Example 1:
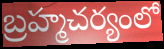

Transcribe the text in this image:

బ్రహ్మచర్యంలో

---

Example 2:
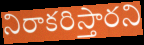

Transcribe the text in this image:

నిరాకరిస్తారని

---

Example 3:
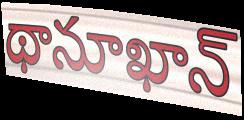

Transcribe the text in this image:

థానూఖాన్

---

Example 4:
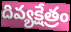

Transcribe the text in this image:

దివ్యక్షేత్రం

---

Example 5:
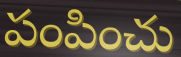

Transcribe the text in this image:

పంపించు